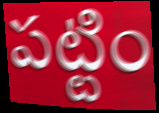
పట్టిం